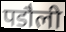
पडौली